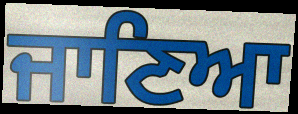
ਜਾਣਿਆ